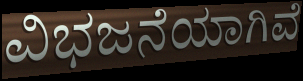
ವಿಭಜನೆಯಾಗಿವೆ